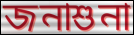
জনাশুনা